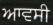
ਆਵਸੀ